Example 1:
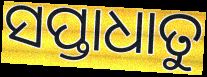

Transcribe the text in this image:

ସପ୍ତାଧାତୁ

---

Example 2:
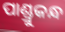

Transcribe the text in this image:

ପାଣ୍ଡ୍ରୁକନ୍ଧ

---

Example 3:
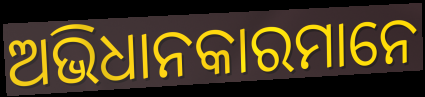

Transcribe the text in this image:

ଅଭିଧାନକାରମାନେ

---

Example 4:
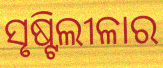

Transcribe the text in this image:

ସୃଷ୍ଟିଲୀଳାର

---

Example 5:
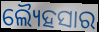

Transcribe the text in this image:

ଲ୍ୟୈହସାର